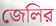
জেলির